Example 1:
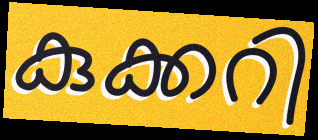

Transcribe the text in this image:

കുക്കറി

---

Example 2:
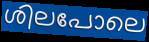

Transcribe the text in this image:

ശിലപോലെ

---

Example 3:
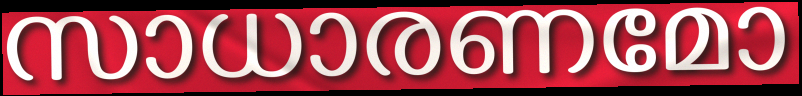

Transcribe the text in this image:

സാധാരണമോ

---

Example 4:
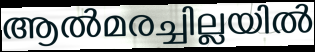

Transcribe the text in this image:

ആൽമരച്ചില്ലയിൽ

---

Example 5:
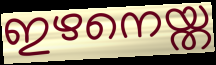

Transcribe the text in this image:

ഇഴനെയ്ത